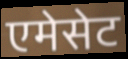
एमेसेट